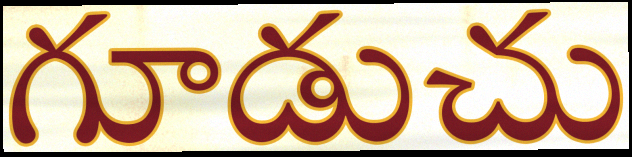
గూడుచు